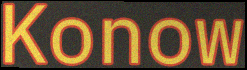
Konow